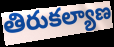
తిరుకల్యాణ